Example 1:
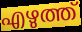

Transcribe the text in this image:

എഴുത്ത്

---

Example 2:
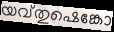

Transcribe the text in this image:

യവ്തുഷെങ്കോ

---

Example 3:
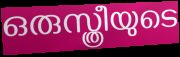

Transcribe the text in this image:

ഒരുസ്ത്രീയുടെ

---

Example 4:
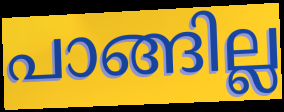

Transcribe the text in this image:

പാങ്ങില്ല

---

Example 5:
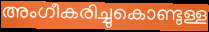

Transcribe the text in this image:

അംഗീകരിച്ചുകൊണ്ടുള്ള